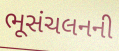
ભૂસંચલનની